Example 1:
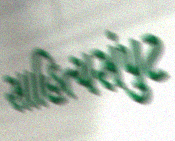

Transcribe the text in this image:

સાહિત્યસંપુટ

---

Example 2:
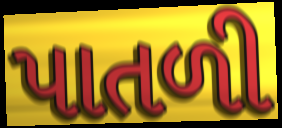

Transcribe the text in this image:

પાતળી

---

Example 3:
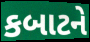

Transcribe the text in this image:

કબાટને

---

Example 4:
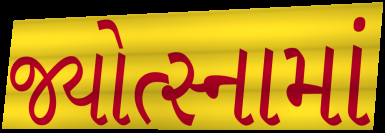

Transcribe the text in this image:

જ્યોત્સ્નામાં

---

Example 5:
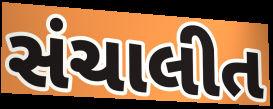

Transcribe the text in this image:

સંચાલીત